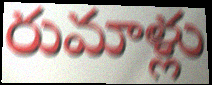
రుమాళ్లు